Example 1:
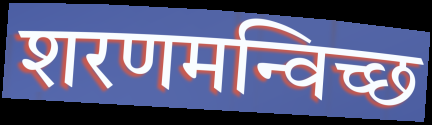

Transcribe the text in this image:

शरणमन्विच्छ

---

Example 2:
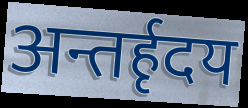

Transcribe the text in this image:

अन्तर्हृदय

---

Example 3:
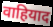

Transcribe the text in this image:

वाहियाद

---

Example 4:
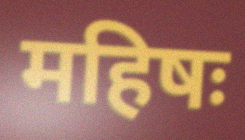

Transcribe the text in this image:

महिषः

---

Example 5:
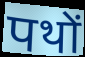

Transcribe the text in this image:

पथों